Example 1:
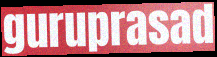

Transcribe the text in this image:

guruprasad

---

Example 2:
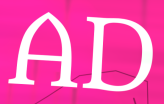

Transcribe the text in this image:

AD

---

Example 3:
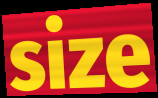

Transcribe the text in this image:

size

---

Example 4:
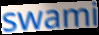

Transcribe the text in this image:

swami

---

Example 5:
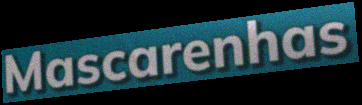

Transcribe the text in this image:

Mascarenhas